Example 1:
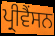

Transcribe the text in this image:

ਪ੍ਰੀਵੈਂਸਨ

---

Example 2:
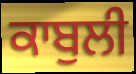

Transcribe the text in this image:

ਕਾਬੁਲੀ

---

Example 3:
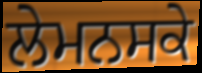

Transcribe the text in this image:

ਲੇਮਨਸਕੇ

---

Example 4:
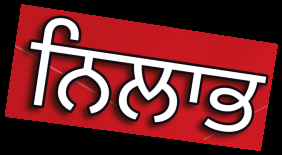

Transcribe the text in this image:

ਨਿਲਾਭ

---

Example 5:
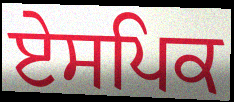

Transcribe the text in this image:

ਏਸਪਿਕ